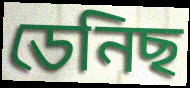
ডেনিছ